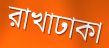
রাখাঢাকা